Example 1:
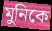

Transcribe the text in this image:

মুনিকে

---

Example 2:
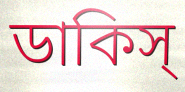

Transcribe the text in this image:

ডাকিস্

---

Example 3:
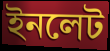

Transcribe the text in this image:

ইনলেট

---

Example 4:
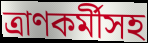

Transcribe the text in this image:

ত্রাণকর্মীসহ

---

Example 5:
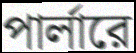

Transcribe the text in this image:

পার্লারে